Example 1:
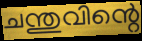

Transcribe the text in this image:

ചന്തുവിന്റെ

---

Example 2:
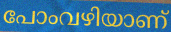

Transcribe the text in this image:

പോംവഴിയാണ്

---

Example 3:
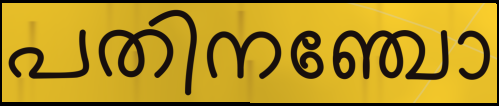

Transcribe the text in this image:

പതിനഞ്ചോ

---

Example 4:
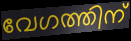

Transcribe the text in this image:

വേഗത്തിന്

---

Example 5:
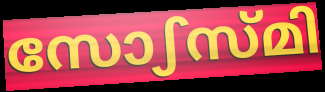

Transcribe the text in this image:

സോഽസ്മി